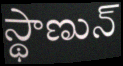
స్థాణున్